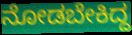
ನೋಡಬೇಕಿದ್ದ